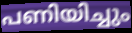
പണിയിച്ചും